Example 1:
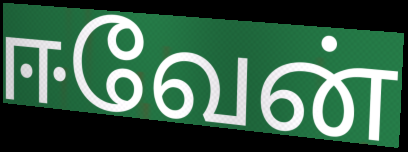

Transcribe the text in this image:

ஈவேன்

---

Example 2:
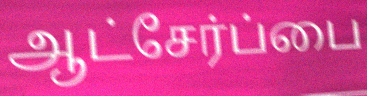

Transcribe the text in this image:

ஆட்சேர்ப்பை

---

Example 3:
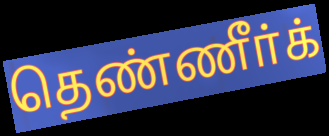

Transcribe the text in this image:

தெண்ணீர்க்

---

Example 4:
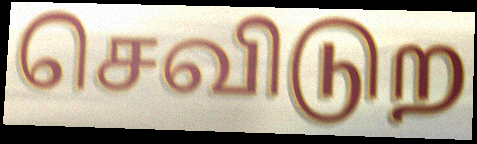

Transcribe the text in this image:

செவிடுற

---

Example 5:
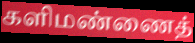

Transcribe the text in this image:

களிமண்ணைத்